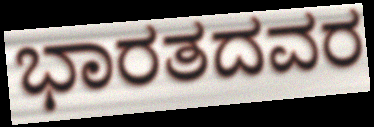
ಭಾರತದವರ